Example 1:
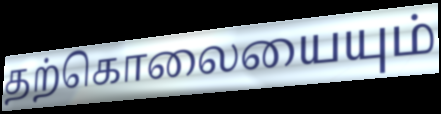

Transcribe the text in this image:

தற்கொலையையும்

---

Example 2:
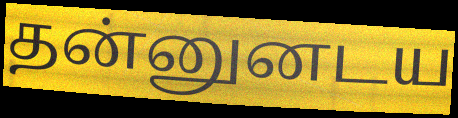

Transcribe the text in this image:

தன்னுனடய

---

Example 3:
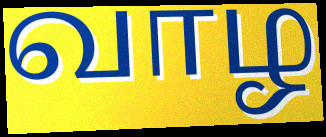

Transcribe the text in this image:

வாழ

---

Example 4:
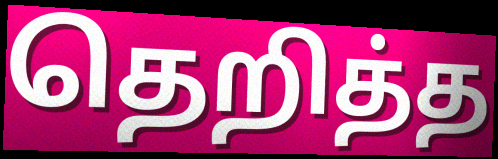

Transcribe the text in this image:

தெறித்த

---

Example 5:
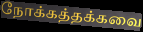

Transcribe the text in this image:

நோக்கத்தக்கவை